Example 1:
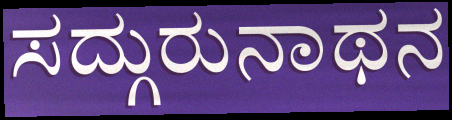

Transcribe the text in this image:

ಸದ್ಗುರುನಾಥನ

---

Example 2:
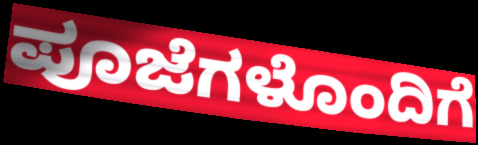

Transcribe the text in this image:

ಪೂಜೆಗಳೊಂದಿಗೆ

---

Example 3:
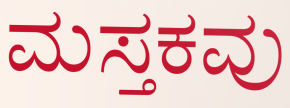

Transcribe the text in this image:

ಮಸ್ತಕವು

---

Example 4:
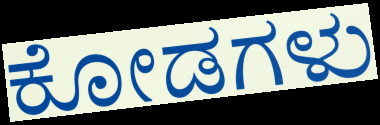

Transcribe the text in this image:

ಕೋಡಗಳು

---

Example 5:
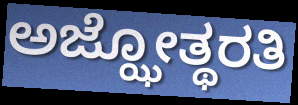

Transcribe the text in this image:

ಅಜ್ಝೋತ್ಥರತಿ